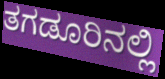
ತಗಡೂರಿನಲ್ಲಿ